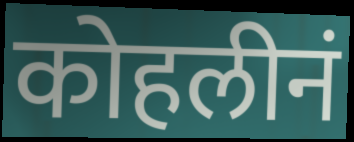
कोहलीनं